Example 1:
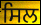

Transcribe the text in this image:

ਸਿਲ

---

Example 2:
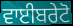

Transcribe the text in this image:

ਵਾਈਬਰੇਟੋ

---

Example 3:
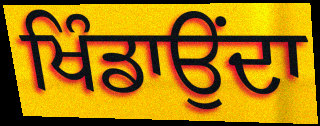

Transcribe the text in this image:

ਖਿੰਡਾਉਂਦਾ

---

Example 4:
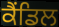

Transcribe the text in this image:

ਕੈਂਡਿਲ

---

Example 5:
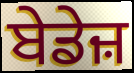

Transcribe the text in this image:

ਬੇਡੇਜ਼